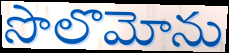
సొలొమోను